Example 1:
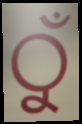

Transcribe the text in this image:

ଠୁଁ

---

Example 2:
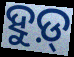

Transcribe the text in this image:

ହୁଡ଼୍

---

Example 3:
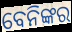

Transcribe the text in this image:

ବେନିଙ୍କର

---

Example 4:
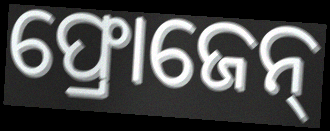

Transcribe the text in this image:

ଫ୍ରୋଜେନ୍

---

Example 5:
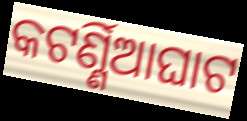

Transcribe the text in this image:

କଟର୍ଣ୍ଣିଆଘାଟ